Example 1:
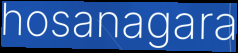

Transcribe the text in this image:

hosanagara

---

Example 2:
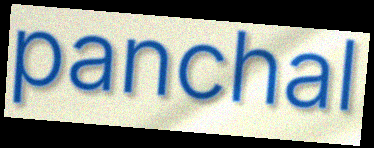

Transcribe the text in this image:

panchal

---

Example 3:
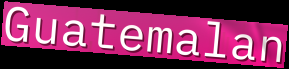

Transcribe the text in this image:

Guatemalan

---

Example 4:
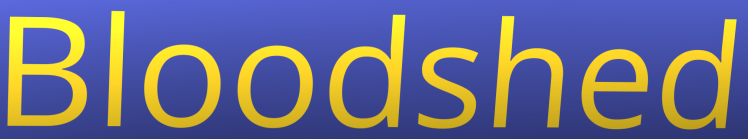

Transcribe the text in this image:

Bloodshed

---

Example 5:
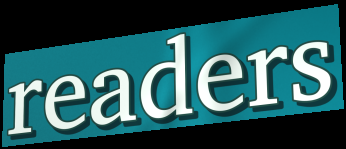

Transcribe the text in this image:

readers